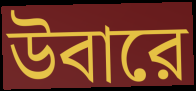
উবারে